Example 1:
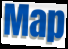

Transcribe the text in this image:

Map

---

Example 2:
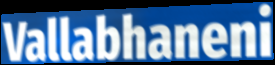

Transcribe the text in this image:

Vallabhaneni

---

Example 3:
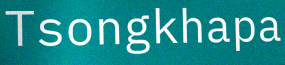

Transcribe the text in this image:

Tsongkhapa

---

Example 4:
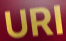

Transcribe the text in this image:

URI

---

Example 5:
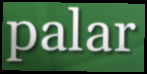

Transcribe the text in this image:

palar